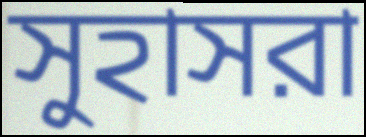
সুহাসরা